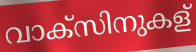
വാക്സിനുകള്